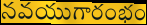
నవయుగారంభం